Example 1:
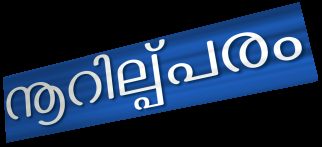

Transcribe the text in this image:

നൂറില്പ്പരം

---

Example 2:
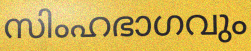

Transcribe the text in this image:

സിംഹഭാഗവും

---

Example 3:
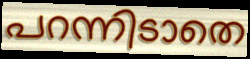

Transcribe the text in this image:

പറന്നിടാതെ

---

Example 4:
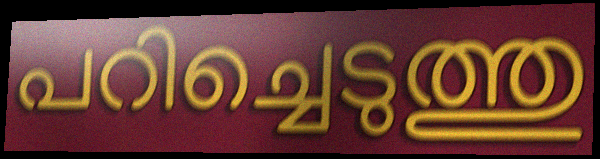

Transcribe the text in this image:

പറിച്ചെടുത്തു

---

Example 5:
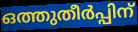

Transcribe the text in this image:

ഒത്തുതീർപ്പിന്